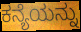
ಕನ್ಯೆಯನ್ನು